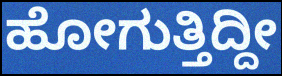
ಹೋಗುತ್ತಿದ್ದೀ